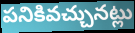
పనికివచ్చునట్లు